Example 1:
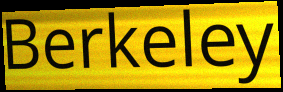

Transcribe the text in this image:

Berkeley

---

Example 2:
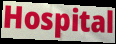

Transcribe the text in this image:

Hospital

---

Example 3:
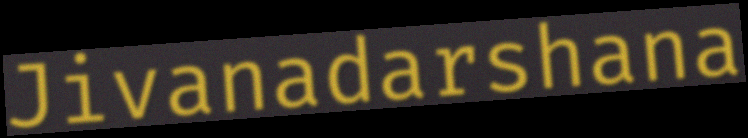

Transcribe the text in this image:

Jivanadarshana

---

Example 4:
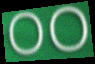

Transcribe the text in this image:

oo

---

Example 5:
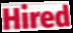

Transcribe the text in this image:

Hired